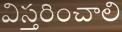
విస్తరించాలి